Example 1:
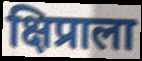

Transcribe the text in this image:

क्षिप्राला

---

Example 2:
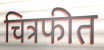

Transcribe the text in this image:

चित्रफीत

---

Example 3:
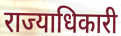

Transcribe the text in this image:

राज्याधिकारी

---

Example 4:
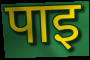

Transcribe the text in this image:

पाइ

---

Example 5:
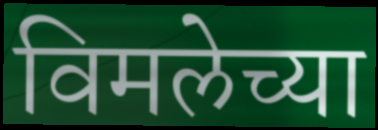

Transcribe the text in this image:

विमलेच्या